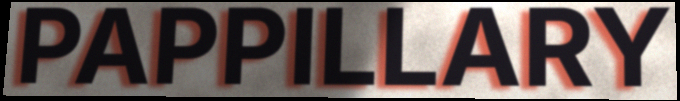
PAPPILLARY